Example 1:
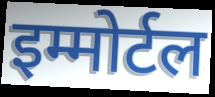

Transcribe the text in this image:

इम्मोर्टल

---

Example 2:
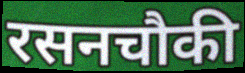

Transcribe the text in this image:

रसनचौकी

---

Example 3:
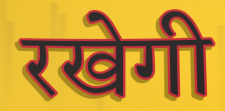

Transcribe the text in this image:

रखेगी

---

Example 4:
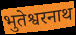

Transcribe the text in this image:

भुतेश्वरनाथ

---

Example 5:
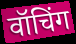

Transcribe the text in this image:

वॉचिंग